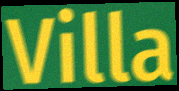
Villa